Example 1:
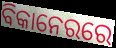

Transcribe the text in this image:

ବିକାନେରରେ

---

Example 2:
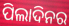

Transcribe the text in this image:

ପିଲାଦିନର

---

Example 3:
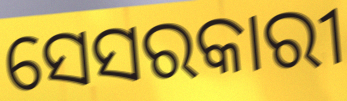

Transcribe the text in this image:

ସେସରକାରୀ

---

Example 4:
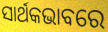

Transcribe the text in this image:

ସାର୍ଥକଭାବରେ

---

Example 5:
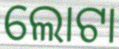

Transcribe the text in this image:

ଲୋଟା